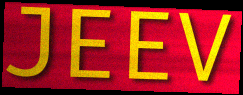
JEEV